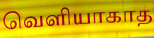
வெளியாகாத